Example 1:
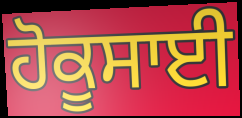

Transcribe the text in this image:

ਹੋਕੂਸਾਈ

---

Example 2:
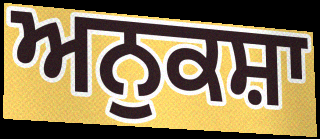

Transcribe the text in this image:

ਅਨੁਕਸ਼ਾ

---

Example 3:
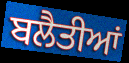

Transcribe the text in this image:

ਬਲੈਤੀਆਂ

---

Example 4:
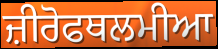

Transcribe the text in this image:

ਜ਼ੀਰੋਫਥਲਮੀਆ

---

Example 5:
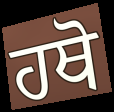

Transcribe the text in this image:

ਹਥੋ